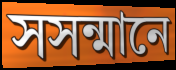
সসন্মানে